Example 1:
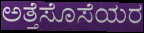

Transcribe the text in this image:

ಅತ್ತೆಸೊಸೆಯರ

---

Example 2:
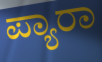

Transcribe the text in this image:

ಪ್ಯಾರಾ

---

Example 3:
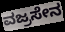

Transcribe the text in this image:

ವಜ್ರಸೇನ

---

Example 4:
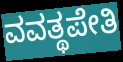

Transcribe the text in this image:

ವವತ್ಥಪೇತಿ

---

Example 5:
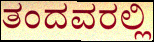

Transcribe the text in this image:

ತಂದವರಲ್ಲಿ